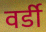
वर्डी